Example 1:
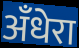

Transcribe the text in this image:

अँधेरा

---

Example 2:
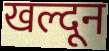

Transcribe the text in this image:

खल्दून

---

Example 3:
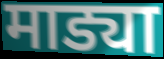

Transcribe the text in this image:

माड्या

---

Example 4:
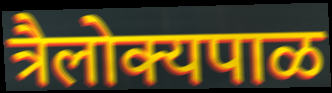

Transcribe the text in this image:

त्रैलोक्यपाळ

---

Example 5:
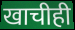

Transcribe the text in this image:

खाचीही